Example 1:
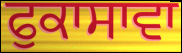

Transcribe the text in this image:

ਫੁਕਾਸਾਵਾ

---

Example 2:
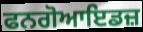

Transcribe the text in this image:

ਫਨਗੋਆਇਡਜ਼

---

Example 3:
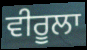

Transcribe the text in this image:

ਵੀਰੂਲਾ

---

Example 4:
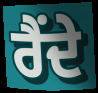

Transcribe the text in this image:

ਰੈਂਦੇ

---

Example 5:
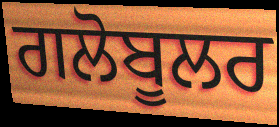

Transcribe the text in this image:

ਗਲੋਬੂਲਰ